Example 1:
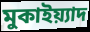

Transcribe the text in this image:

মুকাইয়্যাদ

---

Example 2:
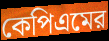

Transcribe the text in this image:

কেপিএমের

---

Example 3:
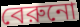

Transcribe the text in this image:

বেরুনো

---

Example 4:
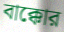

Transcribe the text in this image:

বাক্কোর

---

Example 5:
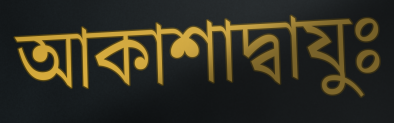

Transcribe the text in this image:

আকাশাদ্বাযুঃ